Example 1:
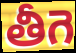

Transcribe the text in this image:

తీగె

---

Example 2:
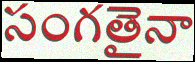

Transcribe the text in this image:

సంగతైనా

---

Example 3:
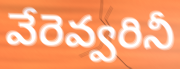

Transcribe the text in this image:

వేరెవ్వరినీ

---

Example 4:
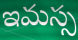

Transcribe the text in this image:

ఇమస్స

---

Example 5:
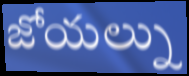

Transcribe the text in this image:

జోయల్ను